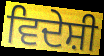
ਵਿਦੇਸ਼ੀ